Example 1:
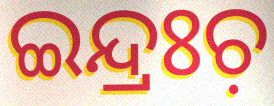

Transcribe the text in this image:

ଇନ୍ଦ୍ରଃଚ଼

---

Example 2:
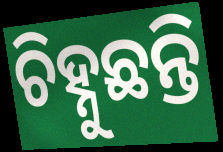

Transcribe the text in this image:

ଚିହ୍ନୁଛନ୍ତି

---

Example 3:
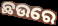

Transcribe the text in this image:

ଛଉରେ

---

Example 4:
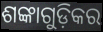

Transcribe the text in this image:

ଶଙ୍କାଗୁଡ଼ିକର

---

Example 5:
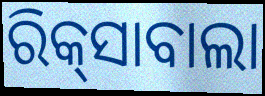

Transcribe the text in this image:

ରିକ୍‍ସାବାଲା